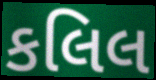
કલિલ